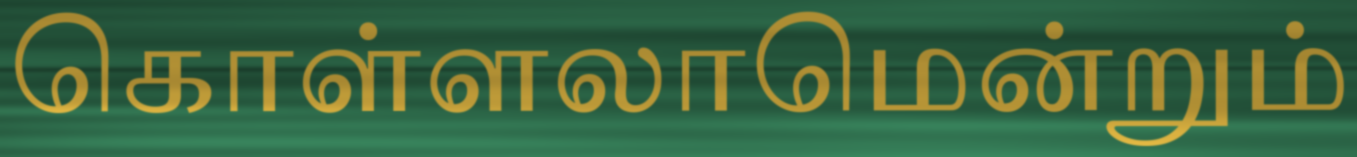
கொள்ளலாமென்றும்